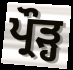
ਪ੍ਰੌੜ੍ਹ